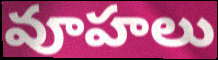
వూహలు